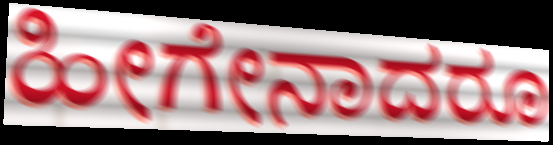
ಹೀಗೇನಾದರೂ